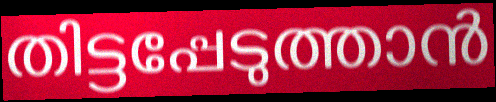
തിട്ടപ്പേടുത്താൻ